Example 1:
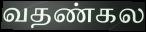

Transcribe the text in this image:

வதண்கல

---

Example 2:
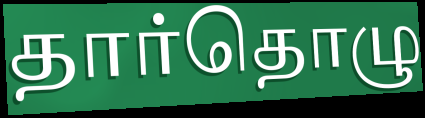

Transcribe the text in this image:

தார்தொழு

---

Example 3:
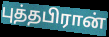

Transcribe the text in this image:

புத்தபிரான்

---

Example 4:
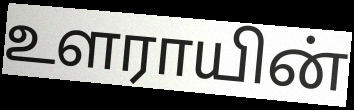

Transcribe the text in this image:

உளராயின்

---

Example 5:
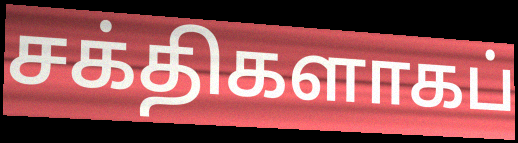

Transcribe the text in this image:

சக்திகளாகப்